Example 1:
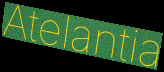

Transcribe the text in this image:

Atelantia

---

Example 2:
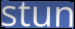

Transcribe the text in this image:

stun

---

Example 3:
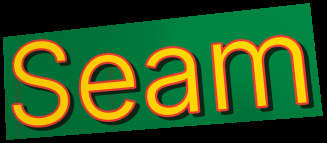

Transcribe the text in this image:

Seam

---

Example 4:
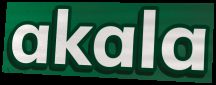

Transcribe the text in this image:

akala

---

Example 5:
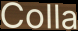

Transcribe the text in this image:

Colla